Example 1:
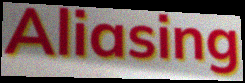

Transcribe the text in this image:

Aliasing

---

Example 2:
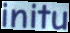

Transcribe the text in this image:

initu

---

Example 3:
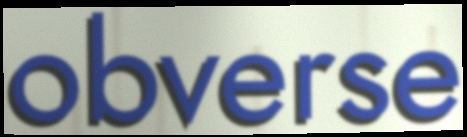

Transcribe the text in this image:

obverse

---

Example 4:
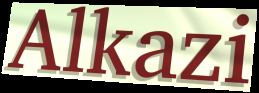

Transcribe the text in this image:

Alkazi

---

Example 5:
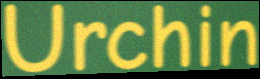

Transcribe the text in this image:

Urchin